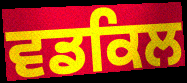
ਵਡਕਿਲ